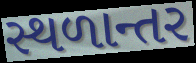
સ્થળાન્તર